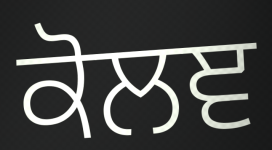
ਕੋਲਞ